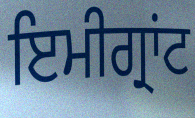
ਇਮੀਗ੍ਰਾਂਟ